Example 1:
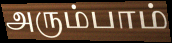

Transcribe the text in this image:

அரும்பாம்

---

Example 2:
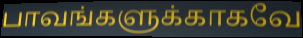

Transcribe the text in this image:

பாவங்களுக்காகவே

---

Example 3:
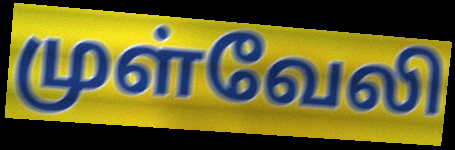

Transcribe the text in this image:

முள்வேலி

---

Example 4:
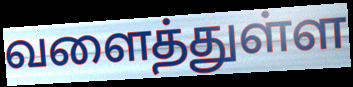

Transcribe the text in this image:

வளைத்துள்ள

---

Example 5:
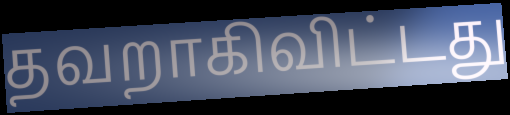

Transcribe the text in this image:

தவறாகிவிட்டது